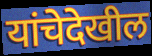
यांचेदेखील